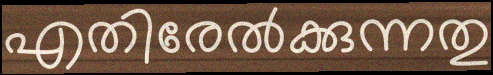
എതിരേൽക്കുന്നതു